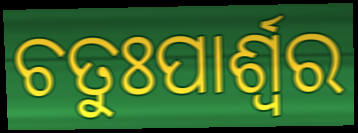
ଚତୁଃପାର୍ଶ୍ଵର